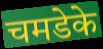
चमडेके